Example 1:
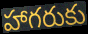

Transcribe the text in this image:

హాగరుకు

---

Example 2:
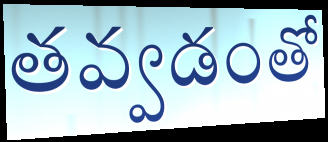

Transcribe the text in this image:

తవ్వడంతో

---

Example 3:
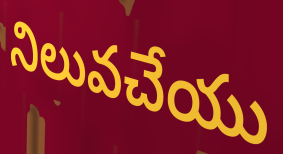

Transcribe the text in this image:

నిలువచేయు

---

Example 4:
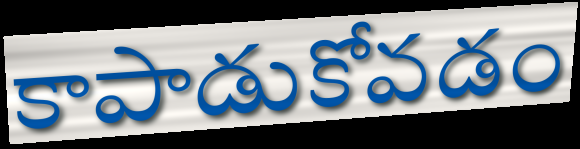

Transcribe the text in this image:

కాపాడుకోవడం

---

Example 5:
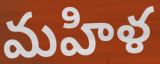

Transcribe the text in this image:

మహిళ